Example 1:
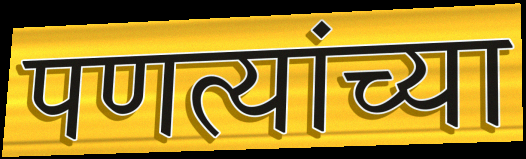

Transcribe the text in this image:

पणत्यांच्या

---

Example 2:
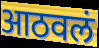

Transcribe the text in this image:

आठवलं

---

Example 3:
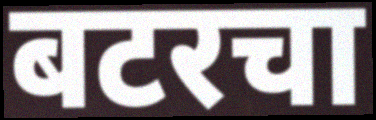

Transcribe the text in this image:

बटरचा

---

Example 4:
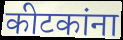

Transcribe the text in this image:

कीटकांना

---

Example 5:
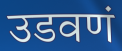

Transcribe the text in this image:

उडवणं